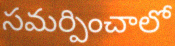
సమర్పించాలో